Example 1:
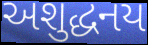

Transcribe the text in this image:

અશુદ્ધનય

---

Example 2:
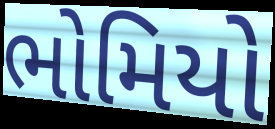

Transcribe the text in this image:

ભોમિયો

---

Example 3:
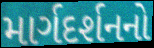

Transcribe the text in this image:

માર્ગદર્શનનો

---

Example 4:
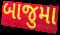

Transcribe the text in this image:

બાજુમા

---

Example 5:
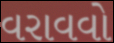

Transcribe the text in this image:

વરાવવો